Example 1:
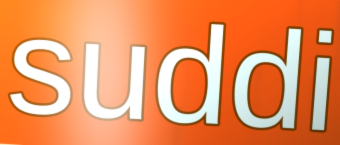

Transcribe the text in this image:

suddi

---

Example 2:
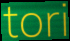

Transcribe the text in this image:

tori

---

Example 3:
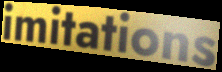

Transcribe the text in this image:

imitations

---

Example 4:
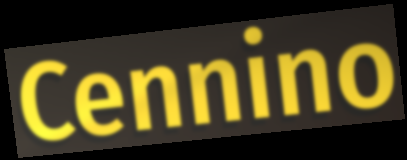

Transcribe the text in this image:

Cennino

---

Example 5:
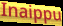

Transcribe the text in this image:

Inaippu